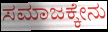
ಸಮಾಜಕ್ಕೇನು